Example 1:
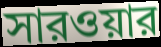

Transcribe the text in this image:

সারওয়ার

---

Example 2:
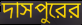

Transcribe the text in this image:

দাসপুরের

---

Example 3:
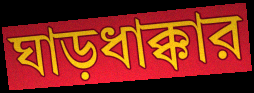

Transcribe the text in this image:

ঘাড়ধাক্কার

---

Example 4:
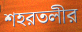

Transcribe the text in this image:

শহরতলীর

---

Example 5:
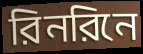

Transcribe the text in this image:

রিনরিনে